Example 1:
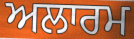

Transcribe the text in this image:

ਅਲਾਰਮ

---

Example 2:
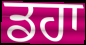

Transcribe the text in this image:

ਡਹਾ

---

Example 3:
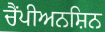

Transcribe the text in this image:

ਚੈਂਪੀਅਨਸ਼ਿਨ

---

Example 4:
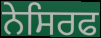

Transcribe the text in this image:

ਨੇਸਿਰਫ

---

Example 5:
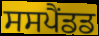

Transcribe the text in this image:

ਸਸਪੈਂਡਡ